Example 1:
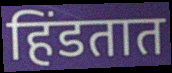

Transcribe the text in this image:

हिंडतात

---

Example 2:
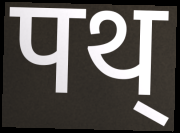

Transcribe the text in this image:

पथ्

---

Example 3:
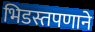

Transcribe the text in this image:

भिडस्तपणाने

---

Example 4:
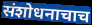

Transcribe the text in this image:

संशोधनाचाच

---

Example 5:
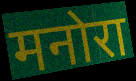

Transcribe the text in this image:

मनोरा